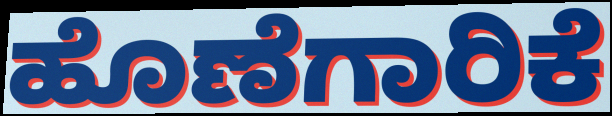
ಹೊಣೆಗಾರಿಕೆ